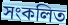
সংকলিত